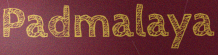
Padmalaya